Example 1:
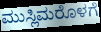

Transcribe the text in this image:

ಮುಸ್ಲಿಮರೊಳಗೆ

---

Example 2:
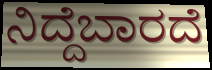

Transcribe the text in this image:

ನಿದ್ದೆಬಾರದೆ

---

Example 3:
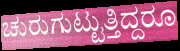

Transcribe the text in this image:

ಚುರುಗುಟ್ಟುತ್ತಿದ್ದರೂ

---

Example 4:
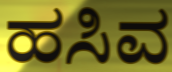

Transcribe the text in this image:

ಹಸಿವ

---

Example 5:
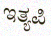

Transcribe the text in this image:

ಇತ್ಯಪಿ